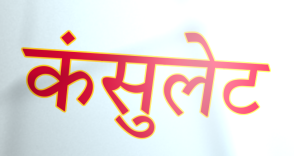
कंसुलेट